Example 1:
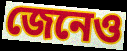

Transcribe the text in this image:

জেনেও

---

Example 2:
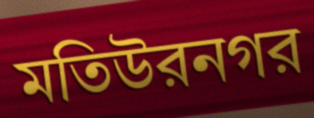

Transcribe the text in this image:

মতিউরনগর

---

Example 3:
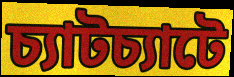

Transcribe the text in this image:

চ্যাটচ্যাটে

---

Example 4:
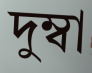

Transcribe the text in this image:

দুম্বা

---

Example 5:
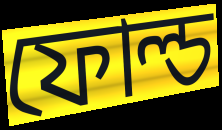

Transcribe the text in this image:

ফোল্ড